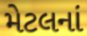
મેટલનાં